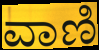
ವಾಣಿ